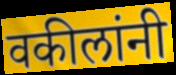
वकीलांनी